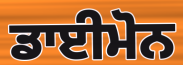
ਡਾਈਮੋਨ